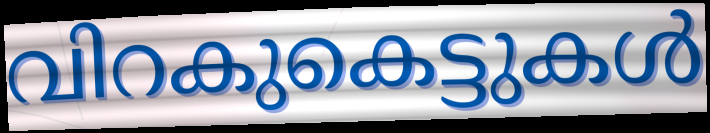
വിറകുകെട്ടുകൾ